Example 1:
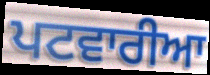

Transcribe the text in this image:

ਪਟਵਾਰੀਆ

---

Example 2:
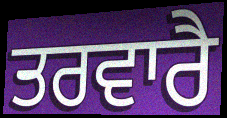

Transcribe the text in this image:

ਤਰਵਾਰੈ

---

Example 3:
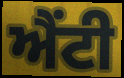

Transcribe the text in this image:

ਐਂਟੀ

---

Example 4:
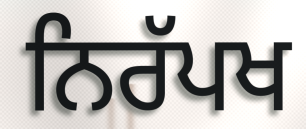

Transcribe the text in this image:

ਨਿਰੱਪਖ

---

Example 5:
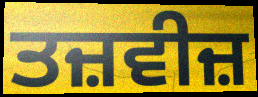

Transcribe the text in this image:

ਤਜ਼ਵੀਜ਼